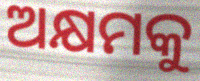
ଅକ୍ଷମକୁ